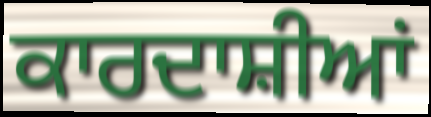
ਕਾਰਦਾਸ਼ੀਆਂ